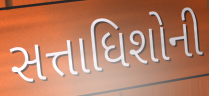
સત્તાધિશોની